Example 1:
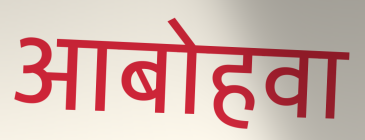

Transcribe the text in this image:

आबोहवा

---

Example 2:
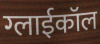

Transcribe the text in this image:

ग्लाईकॉल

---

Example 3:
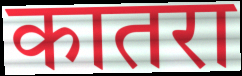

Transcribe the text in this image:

कातरा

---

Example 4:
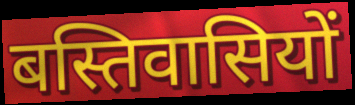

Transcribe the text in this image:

बस्तिवासियों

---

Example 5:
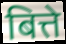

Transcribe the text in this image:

बित्ते